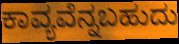
ಕಾವ್ಯವೆನ್ನಬಹುದು